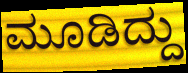
ಮೂಡಿದ್ದು